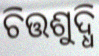
ଚିତ୍ତଶୁଦ୍ଧି